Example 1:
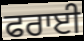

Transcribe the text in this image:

ਫਰਾਈ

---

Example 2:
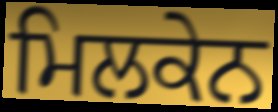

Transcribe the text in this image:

ਮਿਲਕੇਨ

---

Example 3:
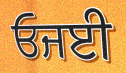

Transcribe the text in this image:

ਓਜਈ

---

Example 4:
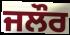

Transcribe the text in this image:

ਜਲੌਰ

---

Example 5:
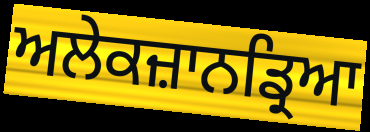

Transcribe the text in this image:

ਅਲੇਕਜ਼ਾਨਡ੍ਰਿਆ